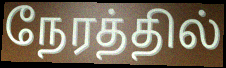
நேரத்தில்